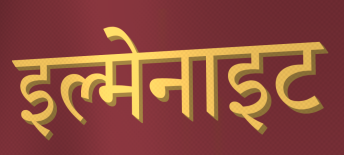
इल्मेनाइट